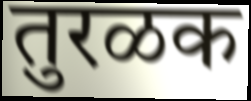
तुरळक